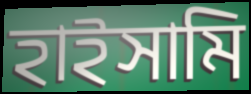
হাইসামি